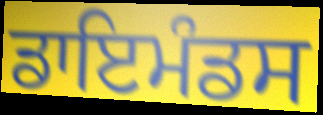
ਡਾਇਮੰਡਸ